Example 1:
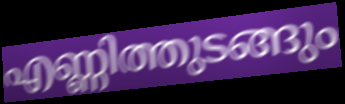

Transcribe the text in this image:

എണ്ണിത്തുടങ്ങും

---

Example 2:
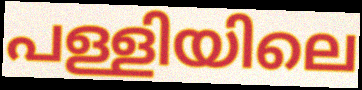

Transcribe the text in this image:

പള്ളിയിലെ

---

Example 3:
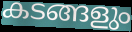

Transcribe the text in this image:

കടങ്ങളും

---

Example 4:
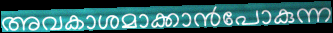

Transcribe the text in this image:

അവകാശമാക്കാൻപോകുന്ന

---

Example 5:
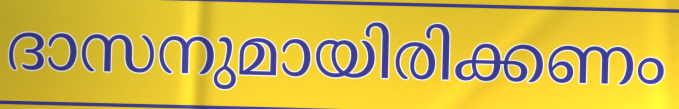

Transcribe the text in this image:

ദാസനുമായിരിക്കണം